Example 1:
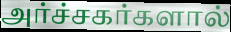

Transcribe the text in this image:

அர்ச்சகர்களால்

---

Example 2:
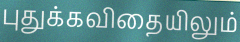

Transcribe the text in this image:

புதுக்கவிதையிலும்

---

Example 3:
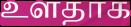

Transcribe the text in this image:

உளதாக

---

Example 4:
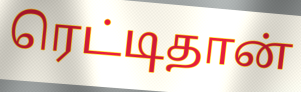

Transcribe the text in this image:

ரெட்டிதான்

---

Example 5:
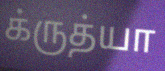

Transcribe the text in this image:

க்ருத்யா